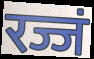
रज्जं